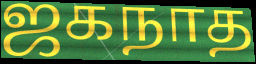
ஜகநாத